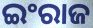
ଇଂରାଜ